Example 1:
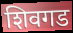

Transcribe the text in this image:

शिवगड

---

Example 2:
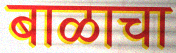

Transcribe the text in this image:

बाळाचा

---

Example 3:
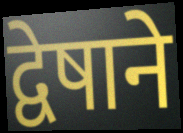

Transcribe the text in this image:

द्वेषाने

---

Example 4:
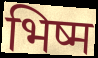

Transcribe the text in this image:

भिष्म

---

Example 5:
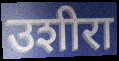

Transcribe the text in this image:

उशीरा